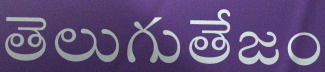
తెలుగుతేజం